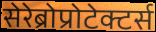
सेरेब्रोप्रोटेक्टर्स